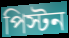
পিস্টন